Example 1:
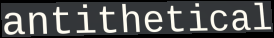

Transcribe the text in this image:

antithetical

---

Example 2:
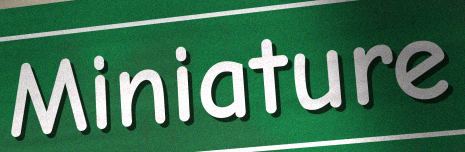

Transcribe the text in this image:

Miniature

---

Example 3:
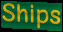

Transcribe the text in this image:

Ships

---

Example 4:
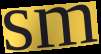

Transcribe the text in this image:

sm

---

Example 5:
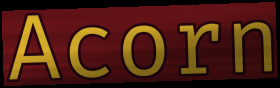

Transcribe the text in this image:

Acorn